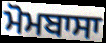
ਮੋਮਬਾਸਾ